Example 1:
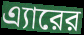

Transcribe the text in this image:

এ্যারের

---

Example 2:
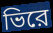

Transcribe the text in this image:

ভিরে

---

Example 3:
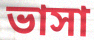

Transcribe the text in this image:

ভাসা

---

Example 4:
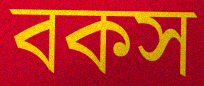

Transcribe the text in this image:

বকস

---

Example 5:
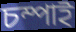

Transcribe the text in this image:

চম্পাই